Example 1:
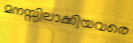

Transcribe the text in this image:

മനസ്സിലാക്കിയവരെ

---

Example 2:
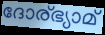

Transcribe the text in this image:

ദോര്ഭ്യാമ്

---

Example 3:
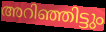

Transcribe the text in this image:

അറിഞ്ഞിട്ടും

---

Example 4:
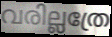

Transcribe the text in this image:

വരില്ലത്രേ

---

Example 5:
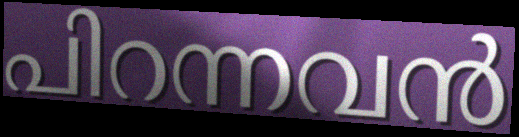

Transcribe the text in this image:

പിറന്നവൻ